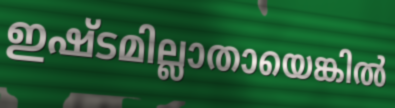
ഇഷ്ടമില്ലാതായെങ്കിൽ